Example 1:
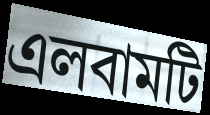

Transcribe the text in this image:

এলবামটি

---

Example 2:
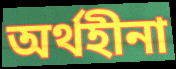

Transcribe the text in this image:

অর্থহীনা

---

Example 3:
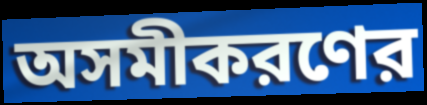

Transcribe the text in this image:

অসমীকরণের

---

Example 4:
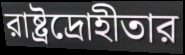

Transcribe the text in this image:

রাষ্ট্রদ্রোহীতার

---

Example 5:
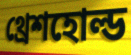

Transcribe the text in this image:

থ্রেশহোল্ড